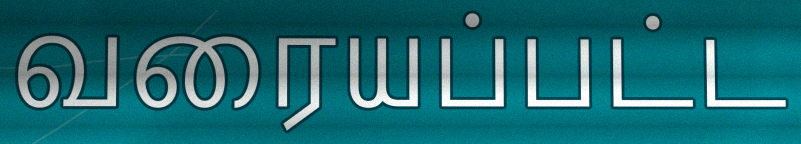
வரையப்பட்ட